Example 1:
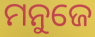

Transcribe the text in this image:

ମନୁଜେ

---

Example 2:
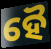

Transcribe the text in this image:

ହୈ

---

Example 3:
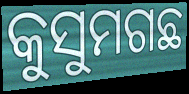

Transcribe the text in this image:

କୁସୁମଗଛ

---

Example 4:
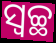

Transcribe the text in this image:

ସ୍ୱଚ୍ଛ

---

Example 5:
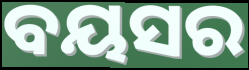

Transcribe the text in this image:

ବୟସର